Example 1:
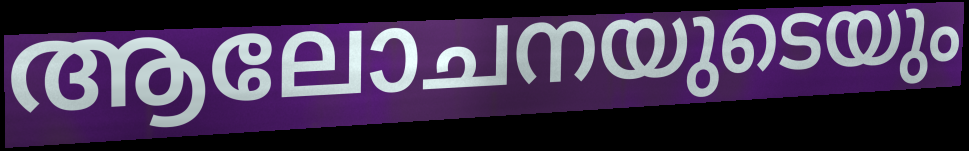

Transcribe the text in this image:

ആലോചനയുടെയും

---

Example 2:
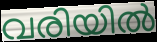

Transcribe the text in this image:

വരിയിൽ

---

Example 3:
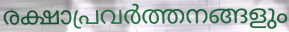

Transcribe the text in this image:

രക്ഷാപ്രവർത്തനങ്ങളും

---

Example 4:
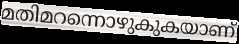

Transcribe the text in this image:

മതിമറന്നൊഴുകുകയാണ്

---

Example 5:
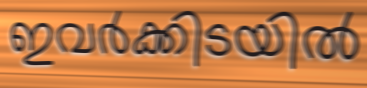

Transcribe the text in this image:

ഇവർക്കിടയിൽ